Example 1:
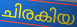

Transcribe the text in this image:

ചിരകിയ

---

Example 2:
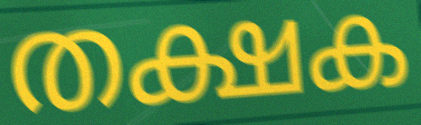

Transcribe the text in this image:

തക്ഷക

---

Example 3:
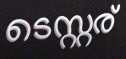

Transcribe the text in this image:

ടെസ്റ്റര്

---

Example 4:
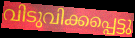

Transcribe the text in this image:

വിടുവിക്കപ്പെട്ടു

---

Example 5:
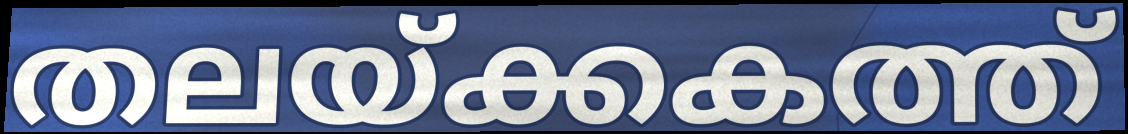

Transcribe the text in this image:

തലയ്ക്കകത്ത്